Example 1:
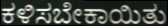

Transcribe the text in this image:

ಕಳಿಸಬೇಕಾಯಿತು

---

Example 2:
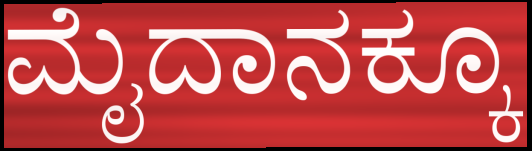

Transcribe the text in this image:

ಮೈದಾನಕ್ಕೂ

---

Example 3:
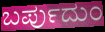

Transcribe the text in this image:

ಬರ್ಪುದುಂ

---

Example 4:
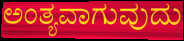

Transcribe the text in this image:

ಅಂತ್ಯವಾಗುವುದು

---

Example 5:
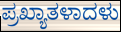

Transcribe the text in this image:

ಪ್ರಖ್ಯಾತಳಾದಳು